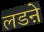
लडऩे